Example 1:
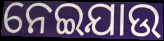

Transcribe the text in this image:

ନେଇଯାଉ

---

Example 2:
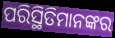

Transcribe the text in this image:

ପରିସ୍ଥିତିମାନଙ୍କର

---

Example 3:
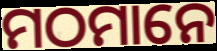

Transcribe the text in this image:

ମଠମାନେ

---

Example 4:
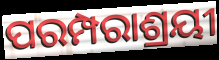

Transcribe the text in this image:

ପରମ୍ପରାଶ୍ରୟୀ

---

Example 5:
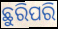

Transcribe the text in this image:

ଛୁରିପରି